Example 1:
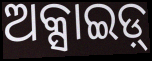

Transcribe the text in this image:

ଅକ୍ସାଇଡ଼୍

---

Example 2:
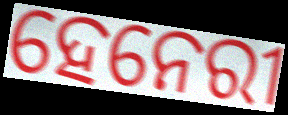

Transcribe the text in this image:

ହେନେରୀ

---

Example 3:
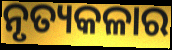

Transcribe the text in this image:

ନୃତ୍ୟକଳାର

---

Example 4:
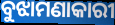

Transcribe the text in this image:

ବୁଝାମଣାକାରୀ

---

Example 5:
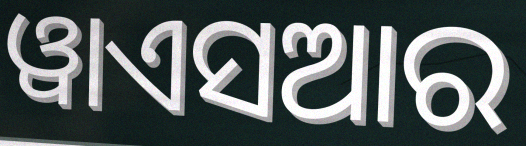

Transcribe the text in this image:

ୱାଏସଆର